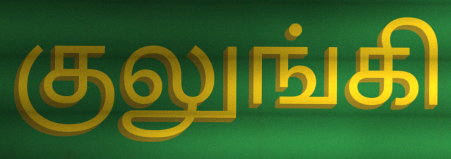
குலுங்கி